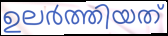
ഉലർത്തിയത്